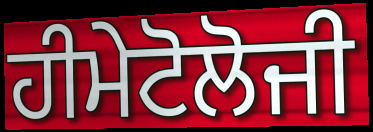
ਹੀਮੇਟੋਲੋਜੀ